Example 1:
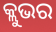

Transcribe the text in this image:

କ୍ଲୁଭର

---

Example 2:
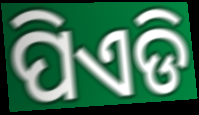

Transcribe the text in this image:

ପିଏଡି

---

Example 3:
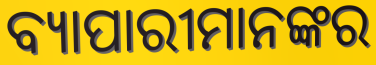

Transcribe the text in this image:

ବ୍ୟାପାରୀମାନଙ୍କର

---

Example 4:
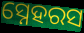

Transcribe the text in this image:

ସ୍ନେହରସ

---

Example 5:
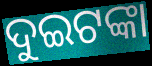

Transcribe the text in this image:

ଦୁଇଟଙ୍କା